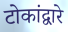
टोकांद्वारे